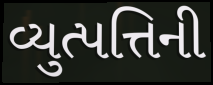
વ્યુત્પત્તિની